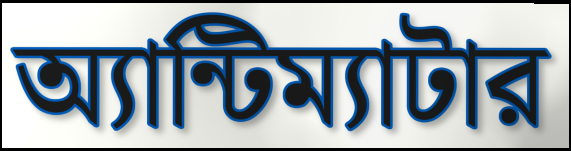
অ্যান্টিম্যাটার